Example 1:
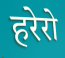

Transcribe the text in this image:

हरेरो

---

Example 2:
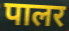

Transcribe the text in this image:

पालर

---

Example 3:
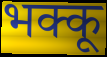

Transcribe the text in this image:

भक्कू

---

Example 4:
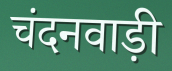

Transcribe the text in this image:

चंदनवाड़ी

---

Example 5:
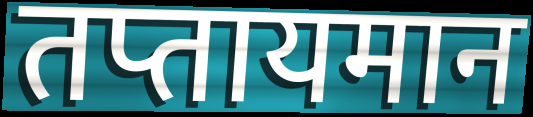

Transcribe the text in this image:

तप्तायमान